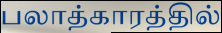
பலாத்காரத்தில்